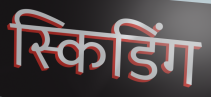
स्किडिंग